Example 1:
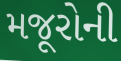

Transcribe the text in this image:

મજૂરોની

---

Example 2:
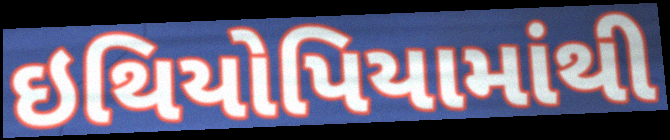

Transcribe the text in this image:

ઇથિયોપિયામાંથી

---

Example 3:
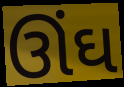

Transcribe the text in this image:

ઊંઘ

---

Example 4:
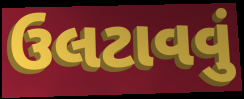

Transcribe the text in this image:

ઉલટાવવું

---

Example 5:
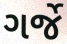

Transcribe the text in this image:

ગર્જે